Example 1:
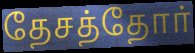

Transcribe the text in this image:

தேசத்தோர்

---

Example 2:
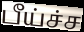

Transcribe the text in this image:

பீய்ச்ச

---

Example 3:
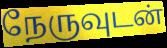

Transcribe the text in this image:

நேருவுடன்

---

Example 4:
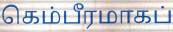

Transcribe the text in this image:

கெம்பீரமாகப்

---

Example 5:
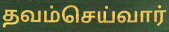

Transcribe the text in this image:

தவம்செய்வார்